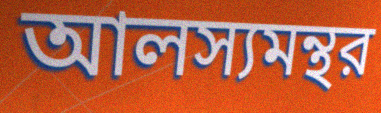
আলস্যমন্থর